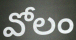
వోలం